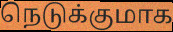
நெடுக்குமாக